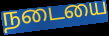
நடையை